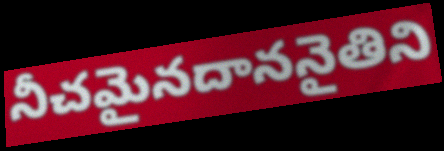
నీచమైనదాననైతిని